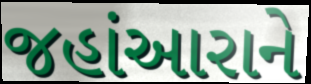
જહાંઆરાને